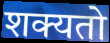
शक्‍यतो